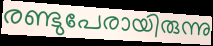
രണ്ടുപേരായിരുന്നു